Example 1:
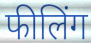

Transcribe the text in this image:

फीलिंग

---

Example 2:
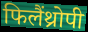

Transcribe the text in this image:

फिलैंथ्रोपी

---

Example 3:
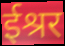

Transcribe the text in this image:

ईश्रर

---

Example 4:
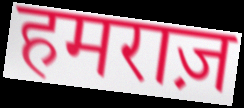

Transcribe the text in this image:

हमराज़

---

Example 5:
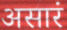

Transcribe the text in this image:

असारं